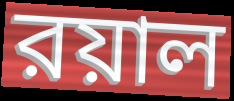
রয়াল